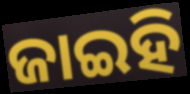
ଜାଇହି